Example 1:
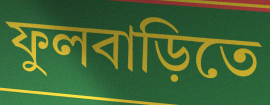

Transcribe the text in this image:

ফুলবাড়িতে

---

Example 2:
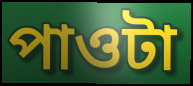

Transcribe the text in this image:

পাওটা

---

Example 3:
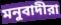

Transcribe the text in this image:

মনুবাদীরা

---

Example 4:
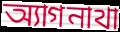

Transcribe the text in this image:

অ্যাগনাথা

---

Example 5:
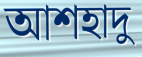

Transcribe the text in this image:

আশহাদু